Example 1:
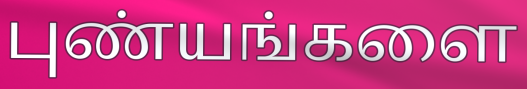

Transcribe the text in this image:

புண்யங்களை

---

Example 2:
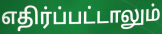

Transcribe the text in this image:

எதிர்ப்பட்டாலும்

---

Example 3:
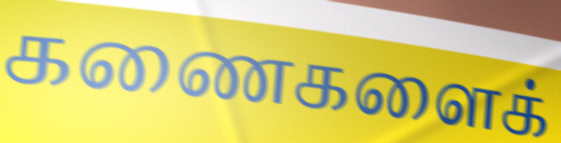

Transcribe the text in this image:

கணைகளைக்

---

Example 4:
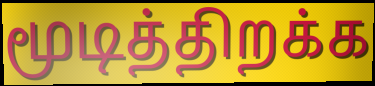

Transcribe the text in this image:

மூடித்திறக்க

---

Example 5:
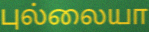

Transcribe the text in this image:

புல்லையா